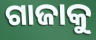
ଗାଜାକୁ